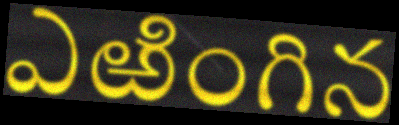
ఎఱింగిన